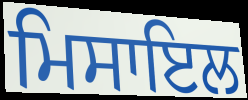
ਮਿਸਾਇਲ